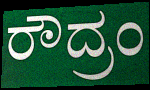
ರೌದ್ರಂ